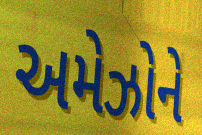
અમેઝોને